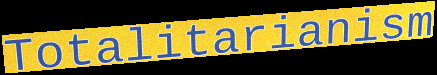
Totalitarianism